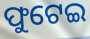
ଫୁଟେଇ